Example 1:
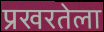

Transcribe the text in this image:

प्रखरतेला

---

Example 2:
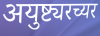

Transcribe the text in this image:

अयुष्ट्यरच्यर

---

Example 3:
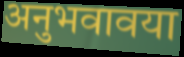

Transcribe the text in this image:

अनुभवावया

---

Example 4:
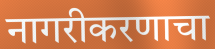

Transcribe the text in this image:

नागरीकरणाचा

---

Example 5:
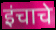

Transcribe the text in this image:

इंचाचे